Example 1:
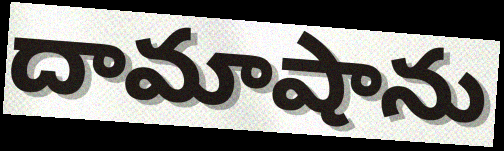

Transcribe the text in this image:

దామాషాను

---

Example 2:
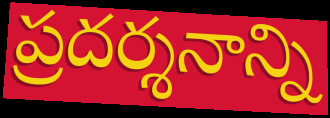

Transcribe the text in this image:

ప్రదర్శనాన్ని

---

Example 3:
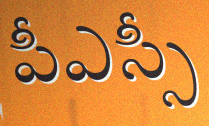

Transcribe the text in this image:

పీఎస్సీ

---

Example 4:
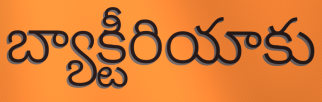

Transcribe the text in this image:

బ్యాక్టీరియాకు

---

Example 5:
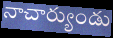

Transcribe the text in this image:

నాచార్యుండు